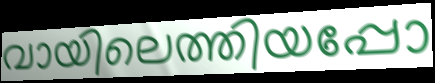
വായിലെത്തിയപ്പോ